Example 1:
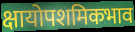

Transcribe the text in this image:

क्षायोपशमिकभाव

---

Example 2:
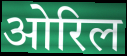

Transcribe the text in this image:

ओरिल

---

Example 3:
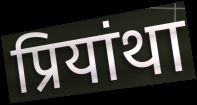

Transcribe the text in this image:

प्रियांथा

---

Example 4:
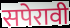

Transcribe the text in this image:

सपेरावी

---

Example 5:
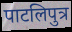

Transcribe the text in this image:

पाटलिपुत्र